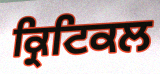
ਕ੍ਰਿਟਿਕਲ